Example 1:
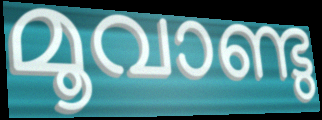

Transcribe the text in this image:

മൂവാണ്ടു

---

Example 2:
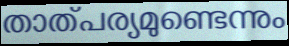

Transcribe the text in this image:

താത്പര്യമുണ്ടെന്നും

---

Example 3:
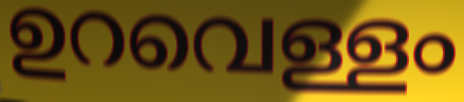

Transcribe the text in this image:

ഉറവെള്ളം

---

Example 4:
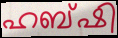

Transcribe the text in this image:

ഹബ്ഷി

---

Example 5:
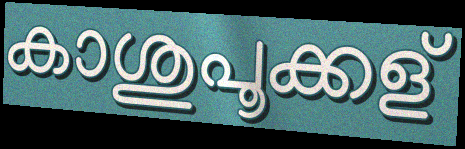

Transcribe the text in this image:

കാശുപൂക്കള്